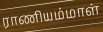
ராணியம்மாள்